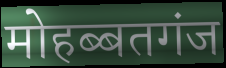
मोहब्बतगंज